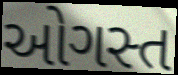
ઓગસ્ત